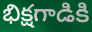
భిక్షగాడికి